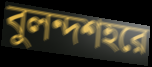
বুলন্দশহরে